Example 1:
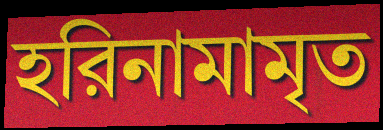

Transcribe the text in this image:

হরিনামামৃত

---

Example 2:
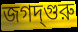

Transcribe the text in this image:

জগদ্‌গুরু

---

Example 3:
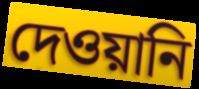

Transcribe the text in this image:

দেওয়ানি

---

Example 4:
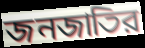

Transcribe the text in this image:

জনজাতির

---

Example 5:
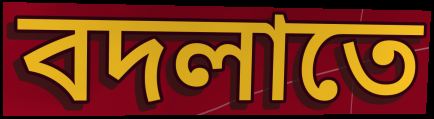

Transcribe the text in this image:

বদলাতে